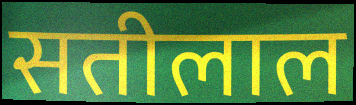
सतीलाल